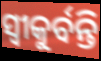
ସ୍ଵୀକୁର୍ବନ୍ତି